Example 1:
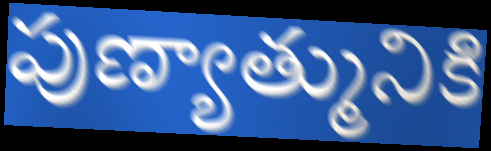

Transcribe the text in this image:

పుణ్యాత్మునికి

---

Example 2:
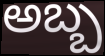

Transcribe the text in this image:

అబ్బ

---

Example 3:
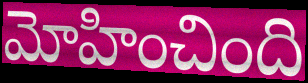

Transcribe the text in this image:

మోహించింది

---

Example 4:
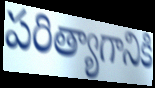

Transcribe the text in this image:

పరిత్యాగానికి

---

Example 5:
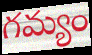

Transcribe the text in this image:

గమ్యం